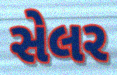
સેલર